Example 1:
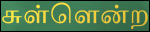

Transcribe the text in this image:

சுள்ளென்ற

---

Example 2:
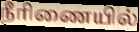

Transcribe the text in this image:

நீரிணையில்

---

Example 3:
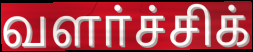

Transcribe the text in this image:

வளர்ச்சிக்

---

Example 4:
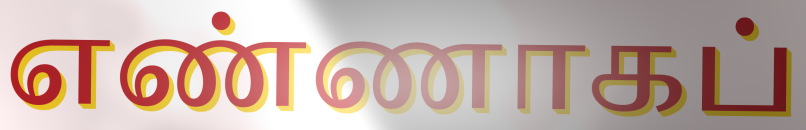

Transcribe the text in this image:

எண்ணாகப்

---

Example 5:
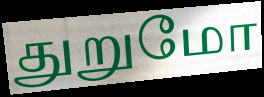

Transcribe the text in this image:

துறுமோ